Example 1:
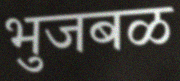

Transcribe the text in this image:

भुजबळ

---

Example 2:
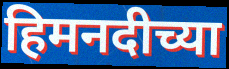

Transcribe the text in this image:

हिमनदीच्या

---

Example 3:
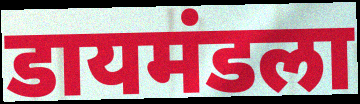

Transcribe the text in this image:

डायमंडला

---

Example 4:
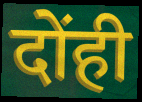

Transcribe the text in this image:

दोंही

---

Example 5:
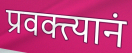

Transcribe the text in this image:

प्रवक्त्यानं